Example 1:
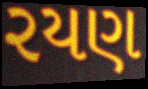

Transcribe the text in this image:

રયણ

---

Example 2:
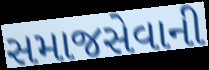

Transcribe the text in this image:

સમાજસેવાની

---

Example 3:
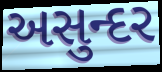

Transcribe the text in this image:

અસુન્દર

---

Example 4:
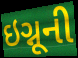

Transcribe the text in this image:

ઇગ્નૂની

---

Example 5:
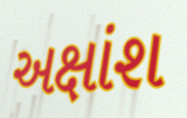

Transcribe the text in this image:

અક્ષાંશ